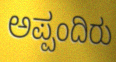
ಅಪ್ಪಂದಿರು